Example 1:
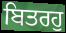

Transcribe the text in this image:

ਬਿਤਰਹੁ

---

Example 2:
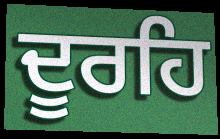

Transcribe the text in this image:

ਦੂਰਹਿ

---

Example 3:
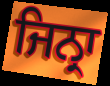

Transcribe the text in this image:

ਜਿਨ੍ਰਾ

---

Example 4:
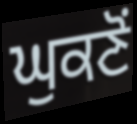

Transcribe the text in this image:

ਘੁਕਣੋਂ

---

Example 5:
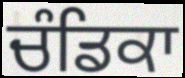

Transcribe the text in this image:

ਚੰਡਿਕਾ